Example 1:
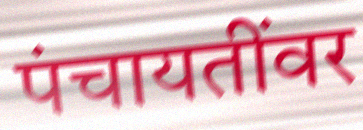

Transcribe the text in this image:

पंचायतींवर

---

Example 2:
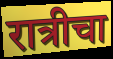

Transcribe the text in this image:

रात्रीचा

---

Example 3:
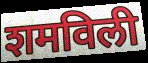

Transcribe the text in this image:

शमविली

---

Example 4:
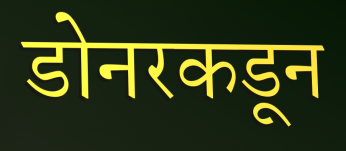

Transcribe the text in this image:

डोनरकडून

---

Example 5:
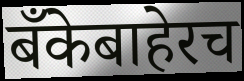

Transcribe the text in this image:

बँकेबाहेरच